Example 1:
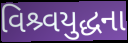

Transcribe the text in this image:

વિશ્ર્વયુદ્ધના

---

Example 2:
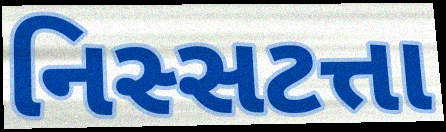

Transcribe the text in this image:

નિસ્સટત્તા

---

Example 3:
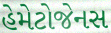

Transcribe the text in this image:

હેમેટોજેનસ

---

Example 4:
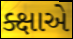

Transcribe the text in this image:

ક્ક્ષાએ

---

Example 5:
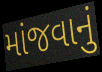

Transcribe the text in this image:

માંજવાનું